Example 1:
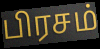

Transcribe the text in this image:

பிரசம்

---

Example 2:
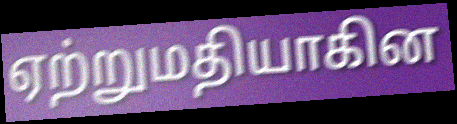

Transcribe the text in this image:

ஏற்றுமதியாகின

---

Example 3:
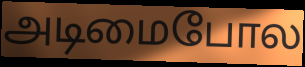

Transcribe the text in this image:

அடிமைபோல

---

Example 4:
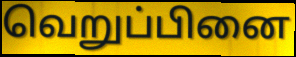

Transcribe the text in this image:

வெறுப்பினை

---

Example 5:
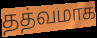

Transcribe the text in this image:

தத்வமாக